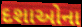
દશાઓના